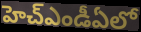
హెచ్ఎండీఏలో